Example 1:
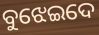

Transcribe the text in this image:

ବୁଝେଇଦେ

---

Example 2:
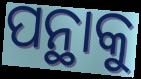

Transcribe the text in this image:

ପନ୍ଥାକୁ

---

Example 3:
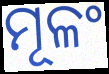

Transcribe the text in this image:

ମୂଳଂ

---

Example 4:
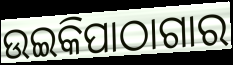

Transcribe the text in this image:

ଉଇକିପାଠାଗାର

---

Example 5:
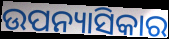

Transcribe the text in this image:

ଉପନ୍ୟାସିକାର